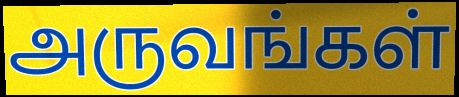
அருவங்கள்